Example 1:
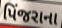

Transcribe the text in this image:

પિંજરાના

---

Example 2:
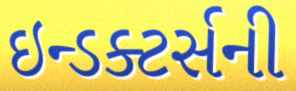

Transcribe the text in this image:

ઇન્ડક્ટર્સની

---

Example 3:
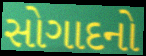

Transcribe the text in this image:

સોગાદનો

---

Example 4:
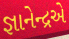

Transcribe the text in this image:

જ્ઞાનેન્દ્રએ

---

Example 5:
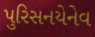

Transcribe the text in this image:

પુરિસનયેનેવ